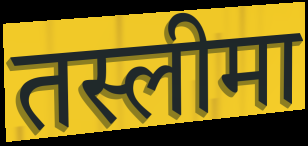
तस्लीमा